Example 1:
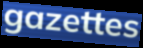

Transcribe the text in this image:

gazettes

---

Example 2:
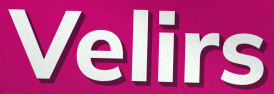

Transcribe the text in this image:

Velirs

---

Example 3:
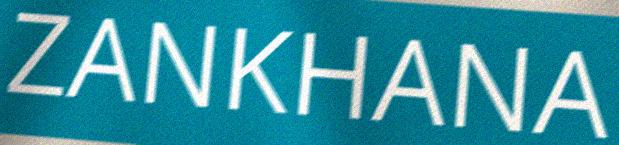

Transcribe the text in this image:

ZANKHANA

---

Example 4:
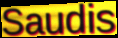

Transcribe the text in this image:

Saudis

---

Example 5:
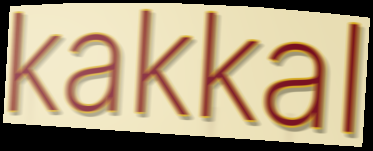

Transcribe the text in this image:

kakkal